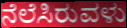
ನೆಲೆಸಿರುವಳು